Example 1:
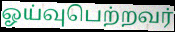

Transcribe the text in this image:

ஓய்வுபெற்றவர்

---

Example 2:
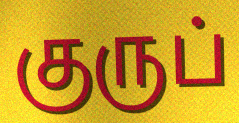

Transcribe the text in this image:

குருப்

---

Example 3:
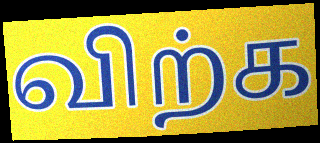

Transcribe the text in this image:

விற்க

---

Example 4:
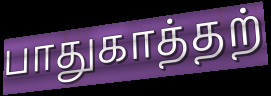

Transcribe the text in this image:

பாதுகாத்தற்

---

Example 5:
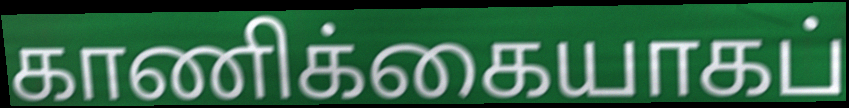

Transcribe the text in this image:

காணிக்கையாகப்